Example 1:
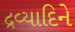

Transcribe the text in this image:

દ્રવ્યાદિને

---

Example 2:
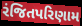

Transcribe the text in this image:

રંજિતપરિણામ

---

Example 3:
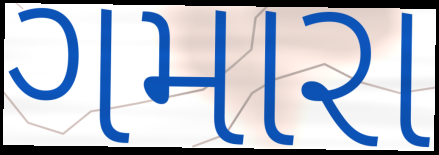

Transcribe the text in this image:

ગમારા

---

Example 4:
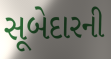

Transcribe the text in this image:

સૂબેદારની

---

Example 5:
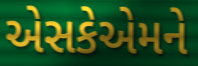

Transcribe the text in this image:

એસકેએમને